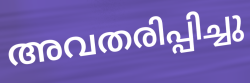
അവതരിപ്പിച്ചു